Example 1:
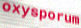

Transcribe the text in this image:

oxysporum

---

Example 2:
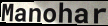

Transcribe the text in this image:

Manohar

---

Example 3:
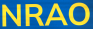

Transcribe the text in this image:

NRAO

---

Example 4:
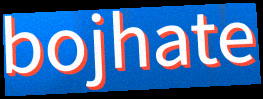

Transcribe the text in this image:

bojhate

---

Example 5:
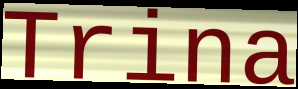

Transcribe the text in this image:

Trina